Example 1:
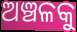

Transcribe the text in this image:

ଅଞ୍ଚଳକୁ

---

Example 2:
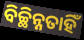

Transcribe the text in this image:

ବିଚ୍ଛିନ୍ନତାହିଁ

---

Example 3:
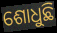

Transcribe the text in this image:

ଶୋଧୁଛି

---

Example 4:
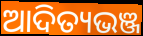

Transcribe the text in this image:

ଆଦିତ୍ୟଭଞ୍ଜ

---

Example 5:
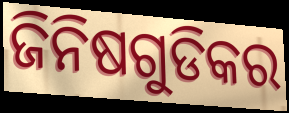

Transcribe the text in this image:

ଜିନିଷଗୁଡିକର